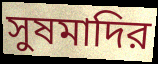
সুষমাদির